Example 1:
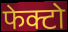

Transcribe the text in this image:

फेक्टो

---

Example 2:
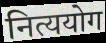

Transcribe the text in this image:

नित्ययोग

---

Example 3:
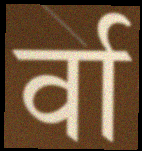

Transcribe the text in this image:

र्वा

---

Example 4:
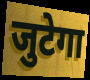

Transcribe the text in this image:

जुटेगा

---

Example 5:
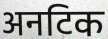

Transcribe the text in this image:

अनटिक